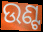
ଉଣ୍ଟ